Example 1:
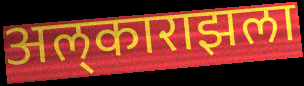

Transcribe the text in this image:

अल्काराझला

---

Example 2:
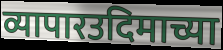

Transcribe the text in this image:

व्यापारउदिमाच्या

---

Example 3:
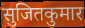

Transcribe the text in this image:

सुजितकुमार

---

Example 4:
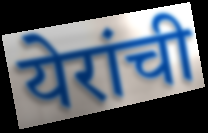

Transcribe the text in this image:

येरांची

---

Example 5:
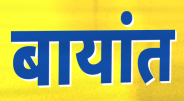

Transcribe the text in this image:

बायांत